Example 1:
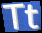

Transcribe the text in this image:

Tt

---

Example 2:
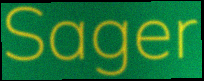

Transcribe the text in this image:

Sager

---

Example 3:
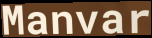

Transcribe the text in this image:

Manvar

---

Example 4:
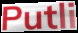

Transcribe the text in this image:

Putli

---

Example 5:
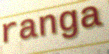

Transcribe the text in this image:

ranga